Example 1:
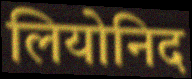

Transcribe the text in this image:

लियोनिद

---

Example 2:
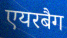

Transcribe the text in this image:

एयरबैग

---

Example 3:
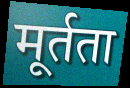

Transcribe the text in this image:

मूर्तता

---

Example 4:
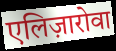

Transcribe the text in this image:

एलिज़ारोवा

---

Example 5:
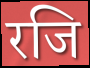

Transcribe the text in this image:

रजि